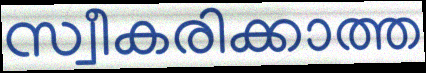
സ്വീകരിക്കാത്ത